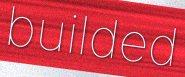
builded